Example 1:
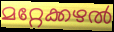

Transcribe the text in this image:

മറ്റേക്കഴൽ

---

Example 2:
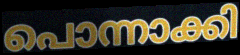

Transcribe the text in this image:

പൊന്നാക്കി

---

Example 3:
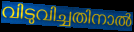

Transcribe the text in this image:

വിടുവിച്ചതിനാൽ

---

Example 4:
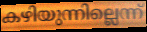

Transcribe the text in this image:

കഴിയുന്നില്ലെന്ന്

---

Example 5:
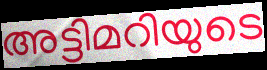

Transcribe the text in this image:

അട്ടിമറിയുടെ